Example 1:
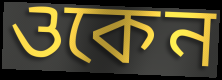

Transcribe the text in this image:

ওকেন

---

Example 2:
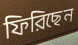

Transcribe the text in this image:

ফিরিছেন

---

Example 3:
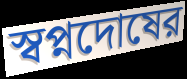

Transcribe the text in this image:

স্বপ্নদোষের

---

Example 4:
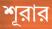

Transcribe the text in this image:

শূরার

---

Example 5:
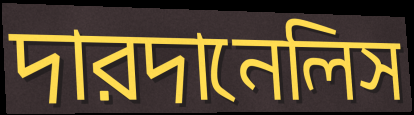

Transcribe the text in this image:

দারদানেলিস